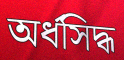
অর্ধসিদ্ধ